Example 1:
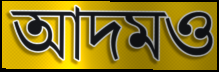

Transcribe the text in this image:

আদমও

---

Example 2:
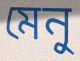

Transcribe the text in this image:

মেনু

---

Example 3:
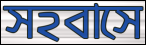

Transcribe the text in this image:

সহবাসে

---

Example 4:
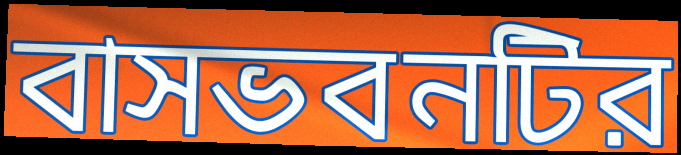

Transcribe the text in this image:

বাসভবনটির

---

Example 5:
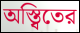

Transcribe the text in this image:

অস্ত্বিতের